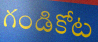
గండికోట